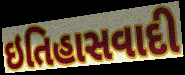
ઇતિહાસવાદી